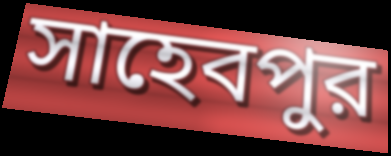
সাহেবপুর